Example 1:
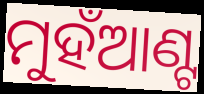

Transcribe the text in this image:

ମୁହଁଆଣ୍ଟ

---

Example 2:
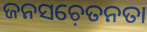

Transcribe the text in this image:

ଜନସଚ଼େତନତା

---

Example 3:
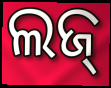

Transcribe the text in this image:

ଲଜ୍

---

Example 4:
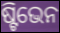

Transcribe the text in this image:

ଷ୍ଟିଭେନ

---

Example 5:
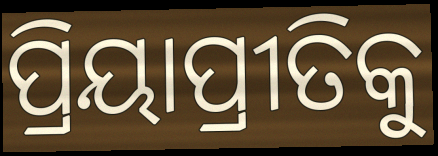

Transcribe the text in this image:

ପ୍ରିୟାପ୍ରୀତିକୁ